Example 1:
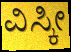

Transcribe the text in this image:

ವಿಸ್ಕೀ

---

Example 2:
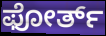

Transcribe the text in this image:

ಫೋರ್ತ್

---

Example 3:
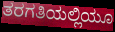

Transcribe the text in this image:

ತರಗತಿಯಲ್ಲಿಯೂ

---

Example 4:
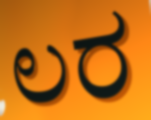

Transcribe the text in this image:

ಲರ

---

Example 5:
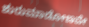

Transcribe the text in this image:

ಶುರುಮಾಡೋಣವೇ